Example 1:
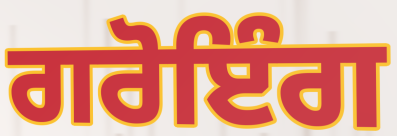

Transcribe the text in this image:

ਗਰੋਇੰਗ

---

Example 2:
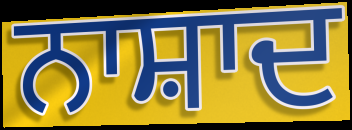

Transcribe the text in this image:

ਨਾਸ਼ਾਦ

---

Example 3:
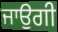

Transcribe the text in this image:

ਜਾਉਗੀ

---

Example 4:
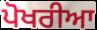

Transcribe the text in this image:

ਪੋਖਰੀਆ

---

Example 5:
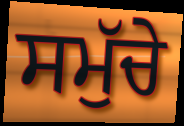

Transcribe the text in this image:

ਸਮੁੱਚੇ